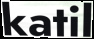
katil